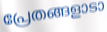
പ്രേതങ്ങളാടാ